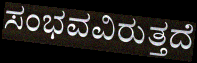
ಸಂಭವವಿರುತ್ತದೆ